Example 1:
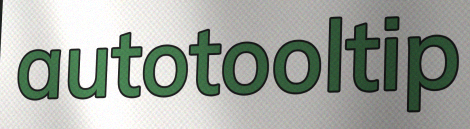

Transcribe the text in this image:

autotooltip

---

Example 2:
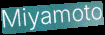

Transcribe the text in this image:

Miyamoto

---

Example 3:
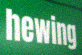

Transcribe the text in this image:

hewing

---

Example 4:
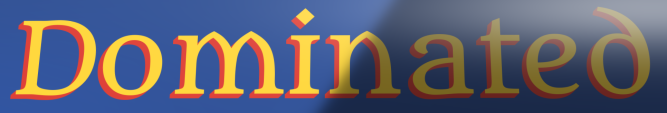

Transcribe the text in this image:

Dominated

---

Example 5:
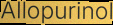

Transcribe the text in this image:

Allopurinol